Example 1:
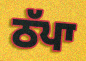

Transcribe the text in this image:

ਠੱਪਾ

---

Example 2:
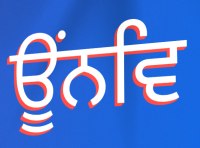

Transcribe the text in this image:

ਊਂਨਵਿ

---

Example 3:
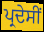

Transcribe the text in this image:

ਪ੍ਰਦੇਸੀਂ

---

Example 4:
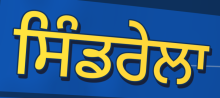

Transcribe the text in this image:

ਸਿੰਡਰੇਲਾ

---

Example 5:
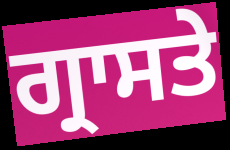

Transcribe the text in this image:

ਗ੍ਰਾਸਤੇ